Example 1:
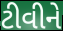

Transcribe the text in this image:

ટીવીને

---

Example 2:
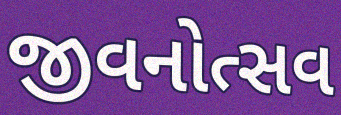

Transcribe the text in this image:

જીવનોત્સવ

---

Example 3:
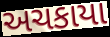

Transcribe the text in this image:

અચકાયા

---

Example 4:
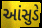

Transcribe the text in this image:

આંસુડે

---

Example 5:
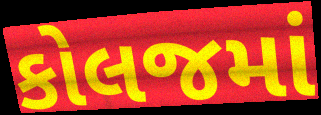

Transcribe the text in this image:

કોલજમાં